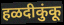
हळदीकुंकू